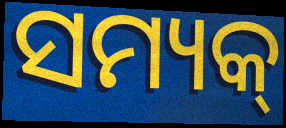
ସମ୍ୟକ୍